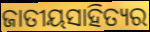
ଜାତୀୟସାହିତ୍ୟର